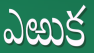
ఎఱుక